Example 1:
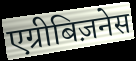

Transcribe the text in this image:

एग्रीबिज़नेस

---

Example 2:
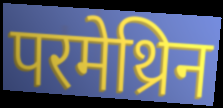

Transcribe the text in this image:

परमेथ्रिन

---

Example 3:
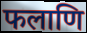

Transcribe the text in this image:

फलाणि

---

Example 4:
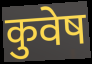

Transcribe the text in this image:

कुवेष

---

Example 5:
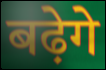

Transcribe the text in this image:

बढ़ेगे